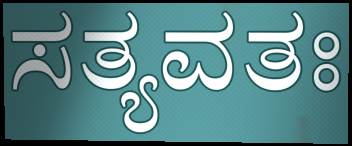
ಸತ್ಯವತಃ